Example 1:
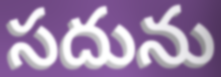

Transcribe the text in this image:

సదును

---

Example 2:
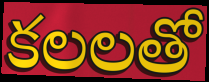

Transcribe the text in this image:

కలలతో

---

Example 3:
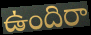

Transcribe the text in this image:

ఉందిరా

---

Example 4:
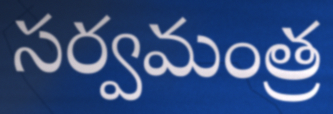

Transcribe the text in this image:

సర్వమంత్ర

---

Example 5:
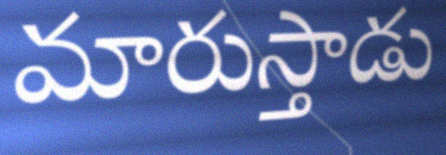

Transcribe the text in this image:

మారుస్తాడు